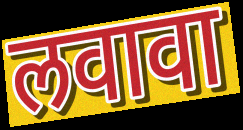
लवावा